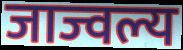
जाज्वल्य